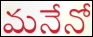
మనేనో